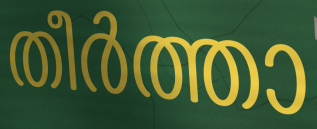
തീർത്താ